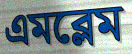
এমব্লেম